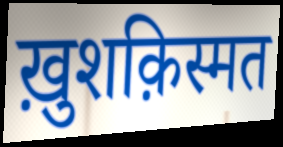
ख़ुशक़िस्मत